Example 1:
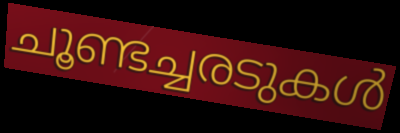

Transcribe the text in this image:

ചൂണ്ടച്ചരടുകൾ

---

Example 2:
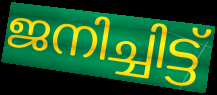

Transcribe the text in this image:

ജനിച്ചിട്ട്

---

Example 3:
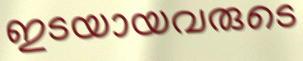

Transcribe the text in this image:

ഇടയായവരുടെ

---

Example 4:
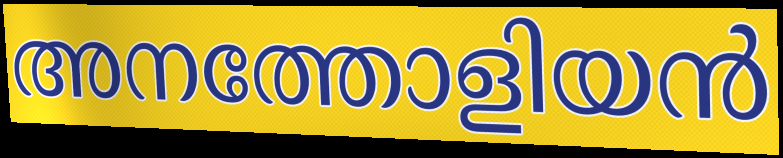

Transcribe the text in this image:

അനത്തോളിയൻ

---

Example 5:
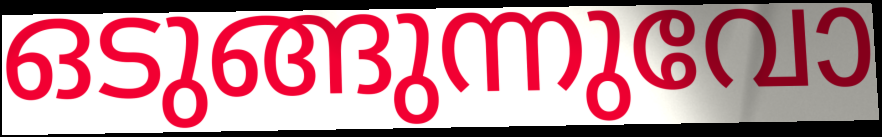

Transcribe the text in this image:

ഒടുങ്ങുന്നുവോ